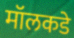
मॉलकडे